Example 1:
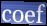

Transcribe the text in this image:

coef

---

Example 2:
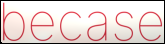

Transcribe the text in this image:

becase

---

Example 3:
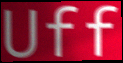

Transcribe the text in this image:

Uff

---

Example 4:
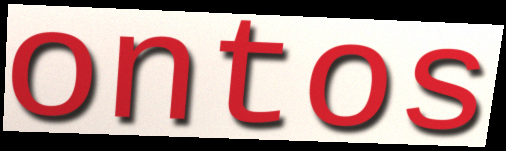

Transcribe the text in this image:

ontos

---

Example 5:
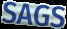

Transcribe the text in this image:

SAGS